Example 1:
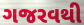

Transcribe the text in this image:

ગજરવથી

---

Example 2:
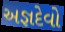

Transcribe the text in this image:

અજ્ઞદેવો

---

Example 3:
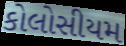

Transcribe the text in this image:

કોલોસીયમ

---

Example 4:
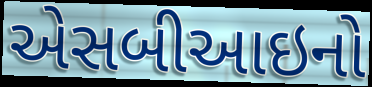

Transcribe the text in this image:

એસબીઆઇનો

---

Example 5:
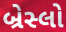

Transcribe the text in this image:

બ્રેસ્લો